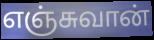
எஞ்சுவான்